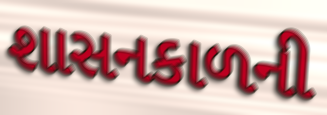
શાસનકાળની